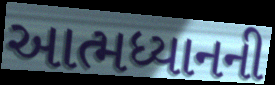
આત્મધ્યાનની